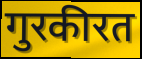
गुरकीरत